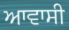
ਆਵਾਸੀ